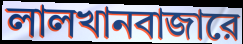
লালখানবাজারে